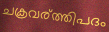
ചക്രവര്ത്തിപദം